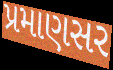
પ્રમાણસર